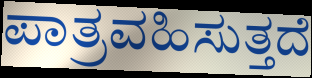
ಪಾತ್ರವಹಿಸುತ್ತದೆ